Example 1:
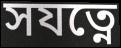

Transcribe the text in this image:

সযত্নে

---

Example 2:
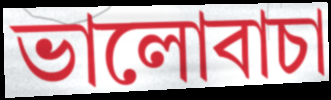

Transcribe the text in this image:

ভালোবাচা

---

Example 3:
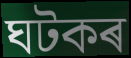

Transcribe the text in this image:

ঘটকৰ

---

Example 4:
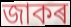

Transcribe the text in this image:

জাকৰ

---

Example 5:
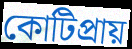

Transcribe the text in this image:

কোটিপ্ৰায়